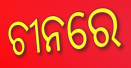
ଚୀନରେ